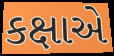
કક્ષાએ